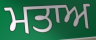
ਮਤਾਅ